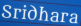
Sridhara